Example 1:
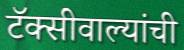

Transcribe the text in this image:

टॅक्सीवाल्यांची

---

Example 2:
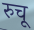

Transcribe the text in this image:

रुचू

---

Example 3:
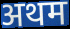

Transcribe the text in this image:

अथम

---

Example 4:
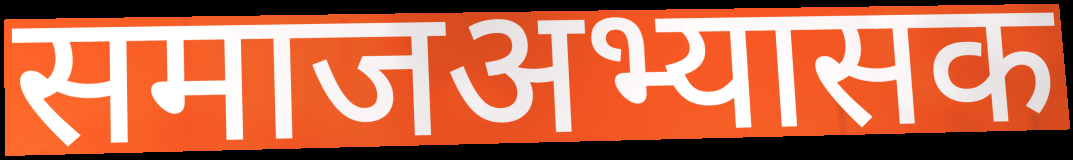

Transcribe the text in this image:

समाजअभ्यासक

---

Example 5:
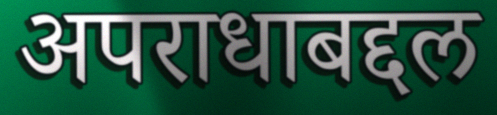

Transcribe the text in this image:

अपराधाबद्दल